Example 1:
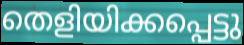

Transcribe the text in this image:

തെളിയിക്കപ്പെട്ടു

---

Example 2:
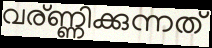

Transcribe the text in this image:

വര്ണ്ണിക്കുന്നത്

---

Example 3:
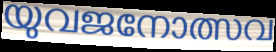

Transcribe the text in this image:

യുവജനോത്സവ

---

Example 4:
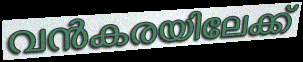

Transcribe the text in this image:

വൻകരയിലേക്ക്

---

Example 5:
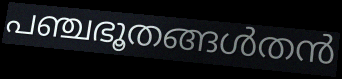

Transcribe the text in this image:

പഞ്ചഭൂതങ്ങൾതൻ